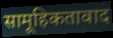
सामूहिकतावाद